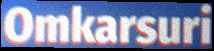
Omkarsuri